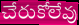
చేరుకోలేవు